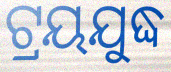
ଟ୍ରୟଯୁଦ୍ଧ